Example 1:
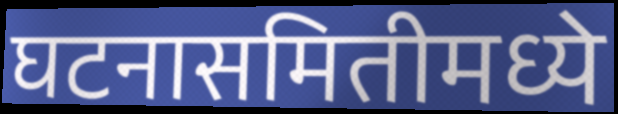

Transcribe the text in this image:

घटनासमितीमध्ये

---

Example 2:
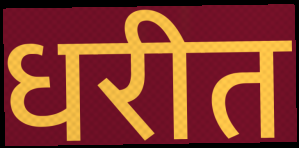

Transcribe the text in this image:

धरीत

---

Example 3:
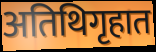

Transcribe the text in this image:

अतिथिगृहात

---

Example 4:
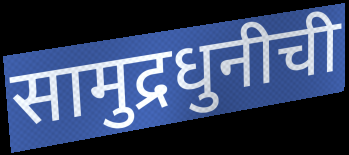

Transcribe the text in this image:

सामुद्रधुनीची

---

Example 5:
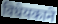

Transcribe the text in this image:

विधेयकाने